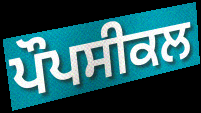
ਪੌਪਸੀਕਲ